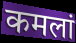
कमलां